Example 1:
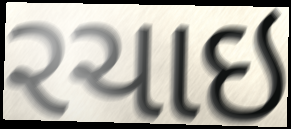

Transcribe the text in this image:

રચાઇ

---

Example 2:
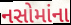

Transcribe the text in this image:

નસોમાંના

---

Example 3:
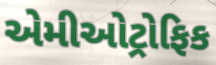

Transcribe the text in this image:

એમીઓટ્રોફિક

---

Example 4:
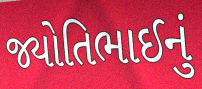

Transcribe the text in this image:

જ્યોતિભાઈનું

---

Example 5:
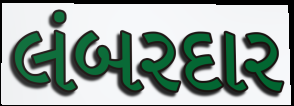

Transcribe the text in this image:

લંબરદાર